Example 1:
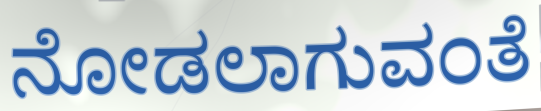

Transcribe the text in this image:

ನೋಡಲಾಗುವಂತೆ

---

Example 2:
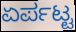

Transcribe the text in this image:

ಏರ್ಪಟ್ಟ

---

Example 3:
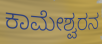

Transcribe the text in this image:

ಕಾಮೇಶ್ವರನ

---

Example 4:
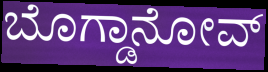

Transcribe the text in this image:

ಬೊಗ್ಡಾನೋವ್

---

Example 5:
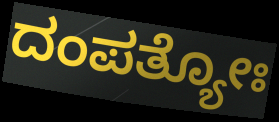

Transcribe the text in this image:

ದಂಪತ್ಯೋಃ